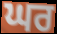
ਘਰ